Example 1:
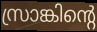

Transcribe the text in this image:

സ്രാങ്കിന്റെ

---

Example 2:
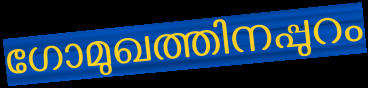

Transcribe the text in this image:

ഗോമുഖത്തിനപ്പുറം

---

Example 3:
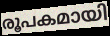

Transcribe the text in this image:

രൂപകമായി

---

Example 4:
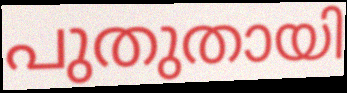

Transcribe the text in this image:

പുതുതായി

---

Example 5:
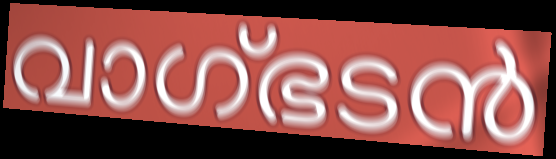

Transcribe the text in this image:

വാഗ്ഭടൻ